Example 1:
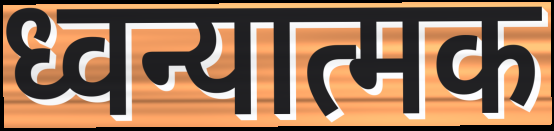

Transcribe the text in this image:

ध्वन्यात्मक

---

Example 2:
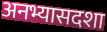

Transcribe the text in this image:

अनभ्यासदशा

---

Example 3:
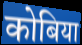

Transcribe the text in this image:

कोबिया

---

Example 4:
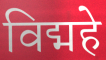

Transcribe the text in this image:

विद्महे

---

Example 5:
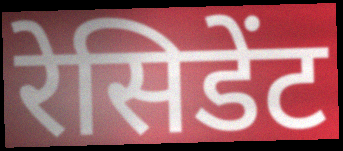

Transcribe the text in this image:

रेसिडेंट